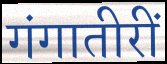
गंगातीरीं